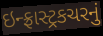
ઇન્ફ્રાસ્ટ્રકચરનું